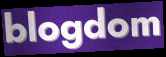
blogdom